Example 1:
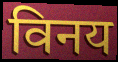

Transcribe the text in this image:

विनय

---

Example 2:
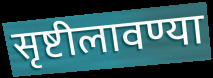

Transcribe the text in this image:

सृष्टीलावण्या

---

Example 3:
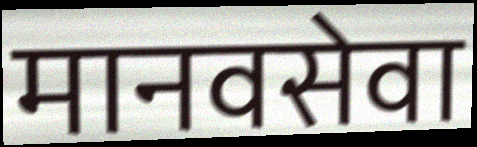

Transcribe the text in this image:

मानवसेवा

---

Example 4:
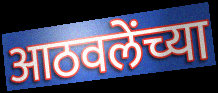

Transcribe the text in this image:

आठवलेंच्या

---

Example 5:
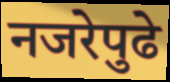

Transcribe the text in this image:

नजरेपुढे